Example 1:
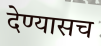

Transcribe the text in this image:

देण्यासच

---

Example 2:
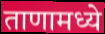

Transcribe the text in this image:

ताणामध्ये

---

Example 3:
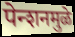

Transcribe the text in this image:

पेन्शनमुळे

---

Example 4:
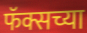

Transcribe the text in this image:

फॅक्सच्या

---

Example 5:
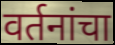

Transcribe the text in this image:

वर्तनांचा